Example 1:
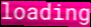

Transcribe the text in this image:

loading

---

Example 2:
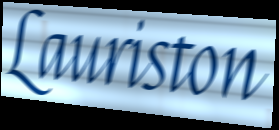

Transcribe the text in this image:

Lauriston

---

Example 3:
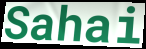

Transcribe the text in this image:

Sahai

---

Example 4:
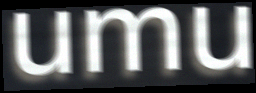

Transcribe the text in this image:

umu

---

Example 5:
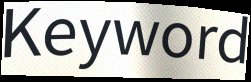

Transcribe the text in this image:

Keyword